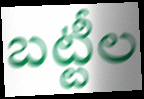
బట్టీల